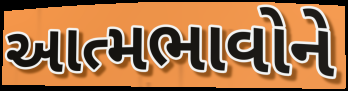
આત્મભાવોને